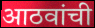
आठवांची